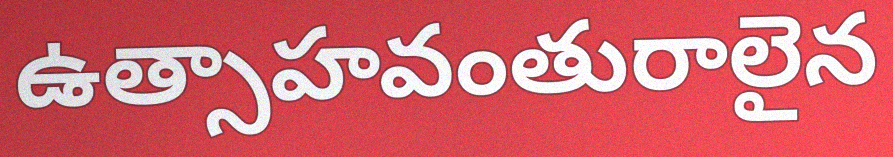
ఉత్సాహవంతురాలైన